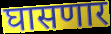
घासणार